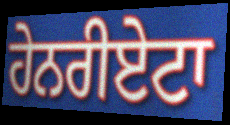
ਹੇਨਰੀਏਟਾ